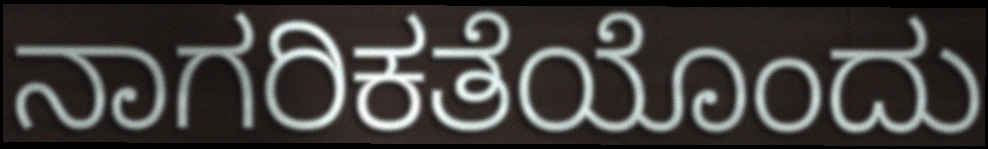
ನಾಗರಿಕತೆಯೊಂದು